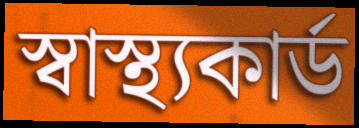
স্বাস্থ্যকার্ড